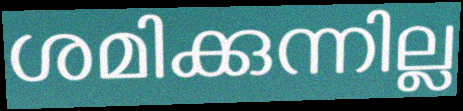
ശമിക്കുന്നില്ല